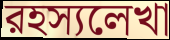
রহস্যলেখা